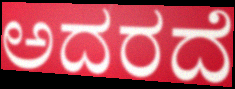
ಅದರದೆ